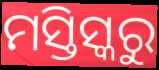
ମସ୍ତିସ୍କରୁ